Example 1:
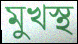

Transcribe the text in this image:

মুখস্থ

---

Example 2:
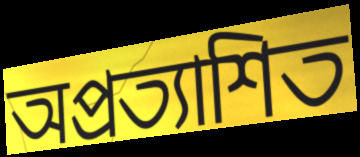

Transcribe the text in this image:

অপ্ৰত্যাশিত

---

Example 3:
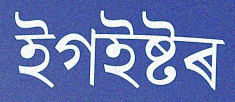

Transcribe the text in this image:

ইগইষ্টৰ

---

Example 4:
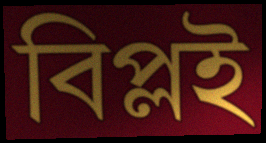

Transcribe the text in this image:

বিপ্লই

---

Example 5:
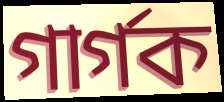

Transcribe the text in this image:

গাৰ্গক